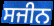
ਸਜੀਨ